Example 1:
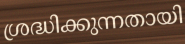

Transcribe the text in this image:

ശ്രദ്ധിക്കുന്നതായി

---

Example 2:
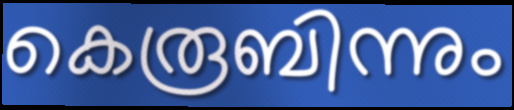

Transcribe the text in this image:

കെരൂബിന്നും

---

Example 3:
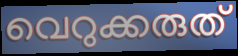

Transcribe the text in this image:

വെറുക്കരുത്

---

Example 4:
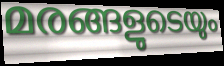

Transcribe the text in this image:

മരങ്ങളുടെയും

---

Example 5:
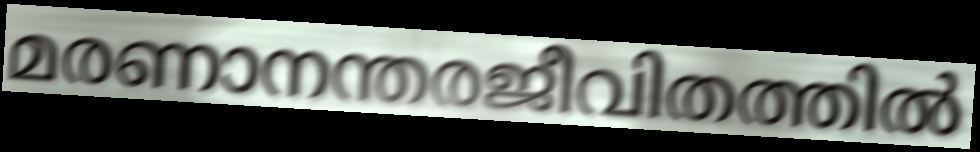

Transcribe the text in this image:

മരണാനന്തരജീവിതത്തിൽ